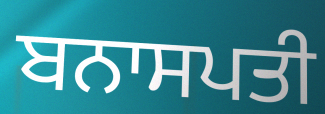
ਬਨਾਸਪਤੀ